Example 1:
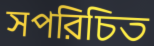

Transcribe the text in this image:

সপরিচিত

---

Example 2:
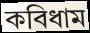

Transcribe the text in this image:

কবিধাম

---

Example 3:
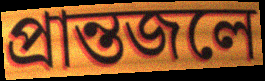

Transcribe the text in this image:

প্রান্তজলে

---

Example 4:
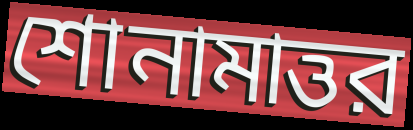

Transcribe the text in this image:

শোনামাত্তর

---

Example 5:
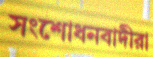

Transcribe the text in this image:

সংশোধনবাদীরা